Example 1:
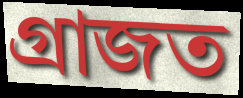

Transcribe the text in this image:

গ্ৰাজত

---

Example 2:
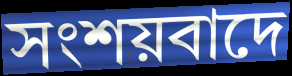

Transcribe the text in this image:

সংশয়বাদে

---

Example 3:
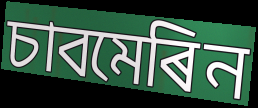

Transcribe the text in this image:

চাবমেৰিন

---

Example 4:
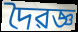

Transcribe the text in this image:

দৈৱজ্ঞ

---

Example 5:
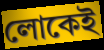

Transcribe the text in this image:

লোকেই